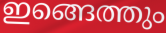
ഇങ്ങെത്തും